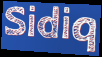
Sidiq